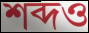
শব্দও